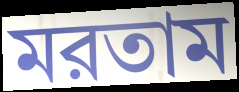
মরতাম